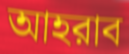
আহরাব